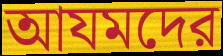
আযমদের